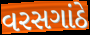
વરસગાંઠે